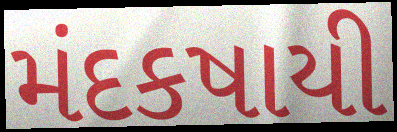
મંદકષાયી